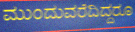
ಮುಂದುವರೆದಿದ್ದರೂ